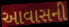
આવાસની